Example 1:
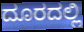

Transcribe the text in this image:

ದೂರದಲ್ಲಿ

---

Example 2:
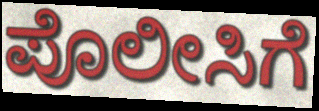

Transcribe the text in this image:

ಪೊಲೀಸಿಗೆ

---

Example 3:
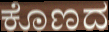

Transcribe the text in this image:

ಕೊಣದ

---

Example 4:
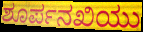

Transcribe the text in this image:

ಶೂರ್ಪನಖಿಯು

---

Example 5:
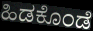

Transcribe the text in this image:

ಹಿಡಕೊಂಡೆ